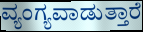
ವ್ಯಂಗ್ಯವಾಡುತ್ತಾರೆ